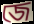
জে